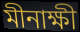
মীনাক্ষী